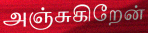
அஞ்சுகிறேன்